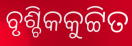
ବୃଶ୍ଚିକକୁଟ୍ଟିତ